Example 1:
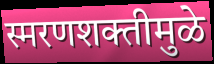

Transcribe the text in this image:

स्मरणशक्तीमुळे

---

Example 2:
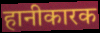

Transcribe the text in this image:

हानीकारक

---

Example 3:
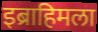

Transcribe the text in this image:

इब्राहिमला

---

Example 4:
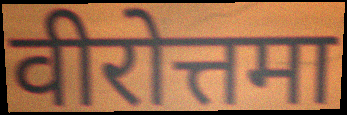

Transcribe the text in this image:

वीरोत्तमा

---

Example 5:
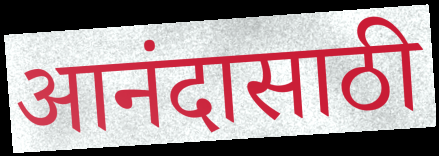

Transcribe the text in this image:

आनंदासाठी